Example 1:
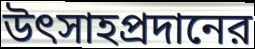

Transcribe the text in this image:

উৎসাহপ্রদানের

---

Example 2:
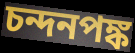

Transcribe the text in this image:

চন্দনপঙ্ক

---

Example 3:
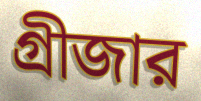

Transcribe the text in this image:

গ্রীজার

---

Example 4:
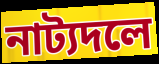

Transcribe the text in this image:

নাট্যদলে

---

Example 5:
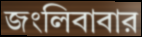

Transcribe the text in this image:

জংলিবাবার